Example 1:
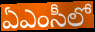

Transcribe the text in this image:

ఏఎంసీలో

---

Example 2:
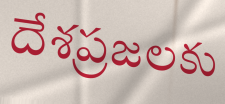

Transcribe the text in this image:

దేశప్రజలకు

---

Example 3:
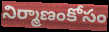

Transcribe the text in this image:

నిర్మాణంకోసం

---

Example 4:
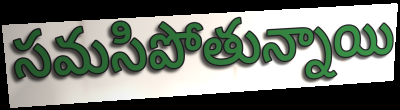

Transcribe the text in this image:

సమసిపోతున్నాయి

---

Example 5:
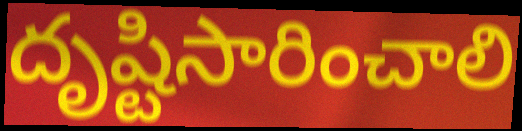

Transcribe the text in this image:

దృష్టిసారించాలి